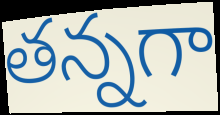
తన్నగా